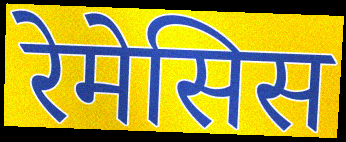
रेमेसिस